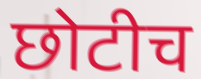
छोटीच